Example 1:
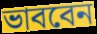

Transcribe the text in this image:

ভাববেন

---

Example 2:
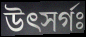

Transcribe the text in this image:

উৎসর্গঃ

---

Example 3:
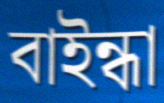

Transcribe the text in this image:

বাইন্ধা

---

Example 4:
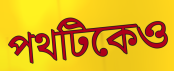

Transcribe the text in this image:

পথটিকেও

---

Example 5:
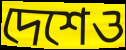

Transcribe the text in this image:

দেশেও